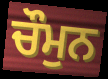
ਚੌਮੁਨ